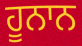
ਹੂਨਾਨ